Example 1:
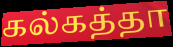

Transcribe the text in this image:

கல்கத்தா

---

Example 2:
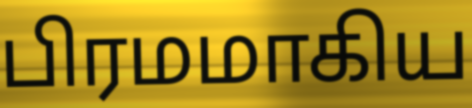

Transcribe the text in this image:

பிரமமாகிய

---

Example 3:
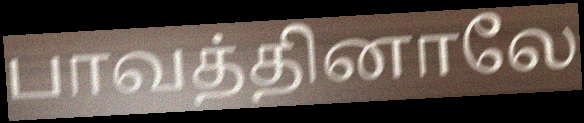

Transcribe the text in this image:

பாவத்தினாலே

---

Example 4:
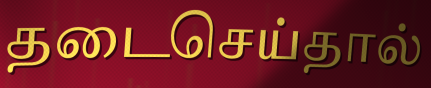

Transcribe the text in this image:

தடைசெய்தால்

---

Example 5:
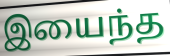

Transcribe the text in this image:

இயைந்த